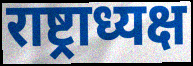
राष्ट्राध्यक्ष